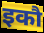
इकौ